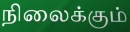
நிலைக்கும்